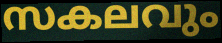
സകലവും